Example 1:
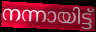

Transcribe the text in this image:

നന്നായിട്ട്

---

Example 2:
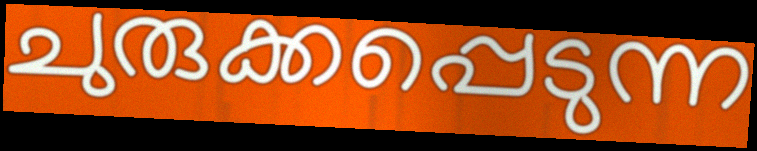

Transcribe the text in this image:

ചുരുക്കപ്പെടുന്ന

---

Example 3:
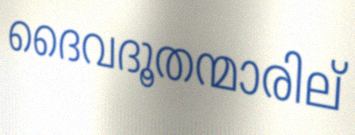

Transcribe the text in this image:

ദൈവദൂതന്മാരില്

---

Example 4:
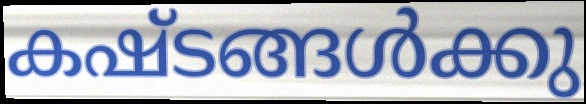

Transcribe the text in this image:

കഷ്ടങ്ങൾക്കു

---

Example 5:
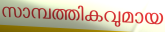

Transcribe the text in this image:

സാമ്പത്തികവുമായ